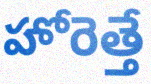
హోరెత్తే